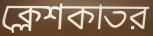
ক্লেশকাতর